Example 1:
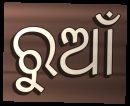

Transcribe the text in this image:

ରୁଆଁ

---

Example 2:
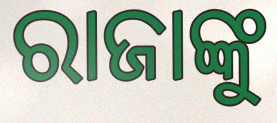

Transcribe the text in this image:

ରାଜାଙ୍କୁ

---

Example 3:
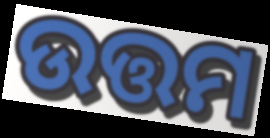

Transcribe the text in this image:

ଉତ୍ତମ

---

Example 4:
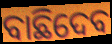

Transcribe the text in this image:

ବାଛିଦେବ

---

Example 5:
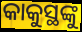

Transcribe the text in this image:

କାକୁସ୍ଥଙ୍କୁ